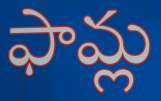
ఫామ్ల